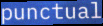
punctual